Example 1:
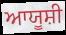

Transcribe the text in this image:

ਆਯੂਸ਼ੀ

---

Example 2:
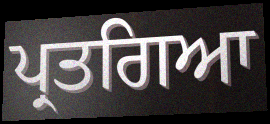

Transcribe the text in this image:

ਪ੍ਰਤਗਿਆ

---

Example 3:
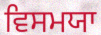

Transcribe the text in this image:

ਵਿਸਮਯਾ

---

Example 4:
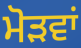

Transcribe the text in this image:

ਮੋੜਵਾਂ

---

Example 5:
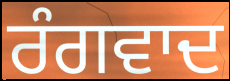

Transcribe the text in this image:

ਰੰਗਵਾਦ